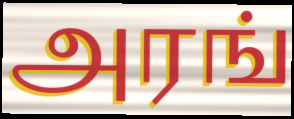
அரங்